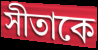
সীতাকে